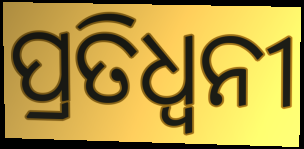
ପ୍ରତିଧ୍ଵନୀ